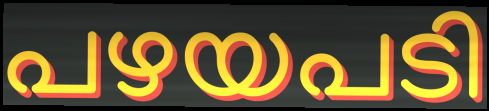
പഴയപടി